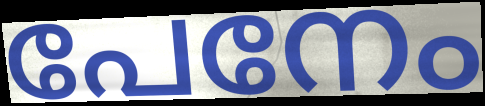
പേനേം